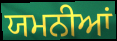
ਯਮਨੀਆਂ